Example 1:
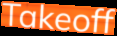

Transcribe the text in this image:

Takeoff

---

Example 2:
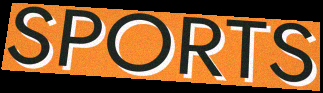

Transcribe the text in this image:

SPORTS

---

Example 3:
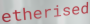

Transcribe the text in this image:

etherised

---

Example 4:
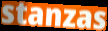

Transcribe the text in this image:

stanzas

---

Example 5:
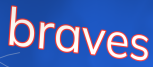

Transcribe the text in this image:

braves